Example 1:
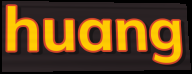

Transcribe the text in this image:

huang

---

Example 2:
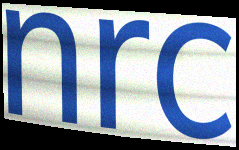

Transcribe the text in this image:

nrc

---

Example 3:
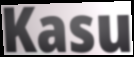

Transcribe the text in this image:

Kasu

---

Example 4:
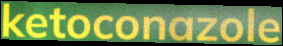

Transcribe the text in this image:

ketoconazole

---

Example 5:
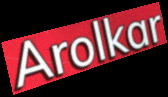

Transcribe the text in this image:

Arolkar